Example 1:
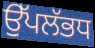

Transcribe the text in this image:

ਉੱਪਲੱਭਧ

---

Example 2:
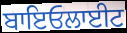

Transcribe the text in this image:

ਬਾਇਓਲਾਈਟ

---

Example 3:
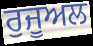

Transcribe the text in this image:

ਰੁਜੂਅਲ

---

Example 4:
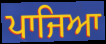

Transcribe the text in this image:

ਪਾਜਿਆ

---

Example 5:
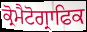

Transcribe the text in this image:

ਕ੍ਰੋਮੈਟੋਗ੍ਰਾਫਿਕ